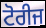
ਟੋਰੀਜ